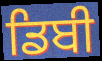
ਡਿਬੀ